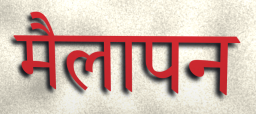
मैलापन